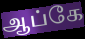
ஆப்கே